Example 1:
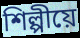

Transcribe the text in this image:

শিল্পীয়ে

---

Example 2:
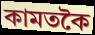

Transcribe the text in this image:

কামতকৈ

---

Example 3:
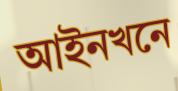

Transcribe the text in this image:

আইনখনে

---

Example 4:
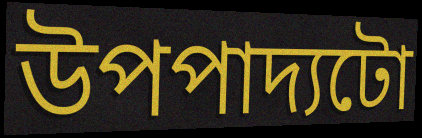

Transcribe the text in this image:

উপপাদ্যটো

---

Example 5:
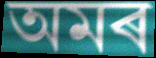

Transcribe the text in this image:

অমৰ